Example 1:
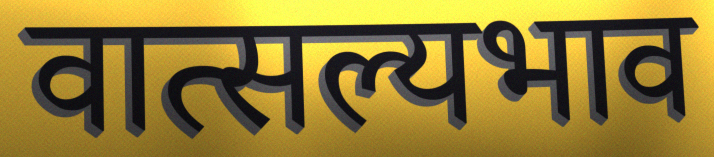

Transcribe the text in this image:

वात्सल्यभाव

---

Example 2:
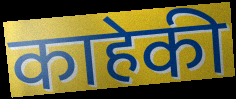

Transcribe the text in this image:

काहेकी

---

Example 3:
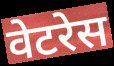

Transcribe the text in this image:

वेटरेस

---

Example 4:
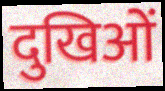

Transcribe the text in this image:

दुखिओं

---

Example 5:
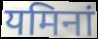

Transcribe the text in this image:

यमिनां